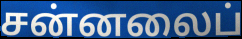
சன்னலைப்